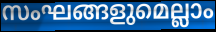
സംഘങ്ങളുമെല്ലാം